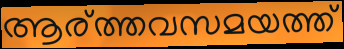
ആര്ത്തവസമയത്ത്